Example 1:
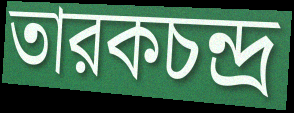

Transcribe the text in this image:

তারকচন্দ্র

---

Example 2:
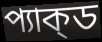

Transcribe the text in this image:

প্যাক্‌ড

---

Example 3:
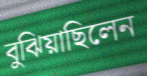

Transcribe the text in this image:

বুঝিয়াছিলেন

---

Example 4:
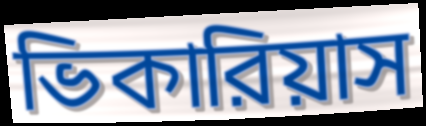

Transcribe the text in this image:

ভিকারিয়াস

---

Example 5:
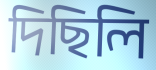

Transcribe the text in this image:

দিছিলি